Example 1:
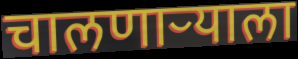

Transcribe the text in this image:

चालणाऱ्याला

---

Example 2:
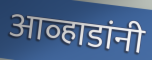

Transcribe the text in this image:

आव्हाडांनी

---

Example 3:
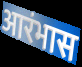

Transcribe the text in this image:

आरंभास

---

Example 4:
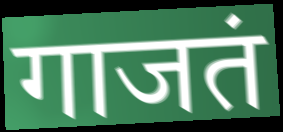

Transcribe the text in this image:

गाजतं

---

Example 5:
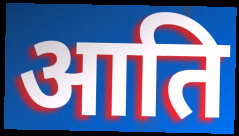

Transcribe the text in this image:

आति